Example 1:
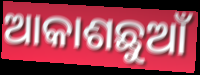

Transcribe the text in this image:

ଆକାଶଛୁଆଁ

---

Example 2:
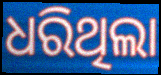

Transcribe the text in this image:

ଧରିଥିଲା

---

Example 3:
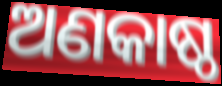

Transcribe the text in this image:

ଅଣକାଷ୍ଠ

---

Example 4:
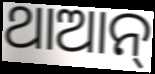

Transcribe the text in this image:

ଥାଆନ୍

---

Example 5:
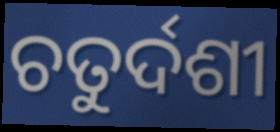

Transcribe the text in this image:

ଚତୁର୍ଦଶୀ